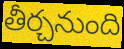
తీర్చనుంది